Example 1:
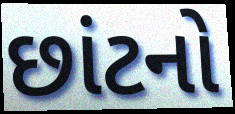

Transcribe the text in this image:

છાંટનો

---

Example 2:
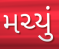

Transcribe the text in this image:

મચ્યું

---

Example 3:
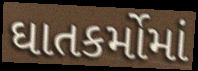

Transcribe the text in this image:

ઘાતકર્મોમાં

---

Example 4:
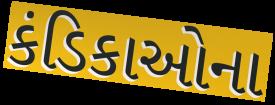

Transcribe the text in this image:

કંડિકાઓના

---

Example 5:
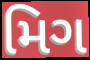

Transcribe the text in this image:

મિગ